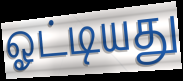
ஓட்டியது